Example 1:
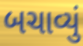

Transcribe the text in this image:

બચાવ્યું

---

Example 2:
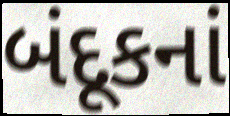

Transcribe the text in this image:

બંદૂકનાં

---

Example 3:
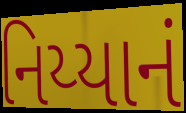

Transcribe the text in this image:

નિય્યાનં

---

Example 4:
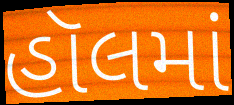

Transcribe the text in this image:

હૉલમાં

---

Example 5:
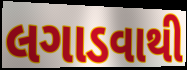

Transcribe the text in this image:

લગાડવાથી